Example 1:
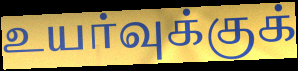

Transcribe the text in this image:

உயர்வுக்குக்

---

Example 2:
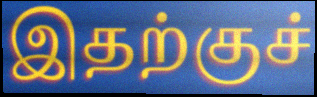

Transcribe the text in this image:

இதற்குச்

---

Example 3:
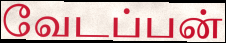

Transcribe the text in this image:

வேடப்பன்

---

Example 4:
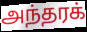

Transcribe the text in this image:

அந்தரக்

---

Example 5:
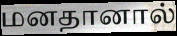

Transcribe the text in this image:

மனதானால்